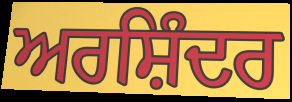
ਅਰਸ਼ਿੰਦਰ